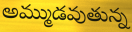
అమ్ముడవుతున్న